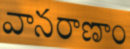
వానరాణాం